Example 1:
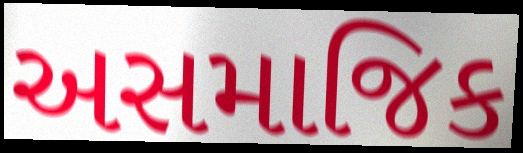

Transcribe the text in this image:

અસમાજિક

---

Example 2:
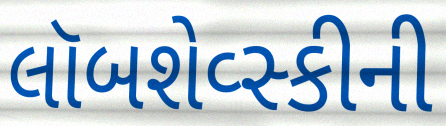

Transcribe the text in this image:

લૉબશેવ્સ્કીની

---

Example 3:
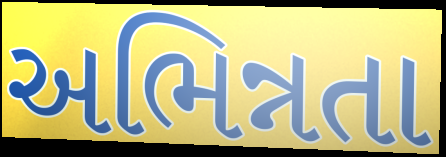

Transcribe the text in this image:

અભિન્નતા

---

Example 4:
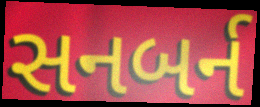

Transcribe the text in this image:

સનબર્ન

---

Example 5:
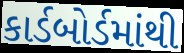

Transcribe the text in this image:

કાર્ડબોર્ડમાંથી